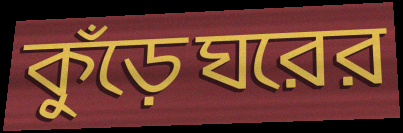
কুঁড়েঘরের